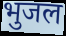
भुजल